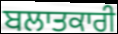
ਬਲਾਤਕਾਰੀ